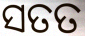
ସତତ